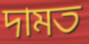
দামত